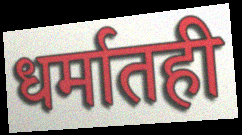
धर्मातही